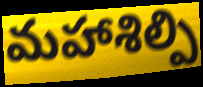
మహాశిల్పి